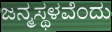
ಜನ್ಮಸ್ಥಳವೆಂದು